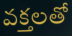
వక్తలతో